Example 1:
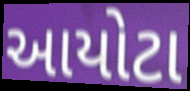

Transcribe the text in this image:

આયોટા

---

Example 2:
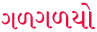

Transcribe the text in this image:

ગળગળયો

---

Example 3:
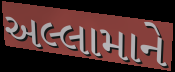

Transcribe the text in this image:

અલ્લામાને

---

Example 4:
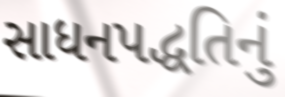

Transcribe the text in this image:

સાધનપદ્ધતિનું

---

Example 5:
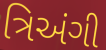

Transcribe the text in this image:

ત્રિઅંગી